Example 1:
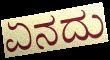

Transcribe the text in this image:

ಏನದು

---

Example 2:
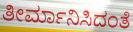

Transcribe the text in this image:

ತೀರ್ಮಾನಿಸಿದಂತೆ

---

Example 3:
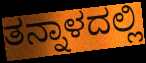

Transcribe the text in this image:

ತನ್ನಾಳದಲ್ಲಿ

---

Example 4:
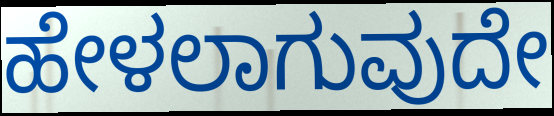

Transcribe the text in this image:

ಹೇಳಲಾಗುವುದೇ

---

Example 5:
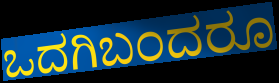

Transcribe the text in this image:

ಒದಗಿಬಂದರೂ